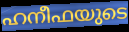
ഹനീഫയുടെ